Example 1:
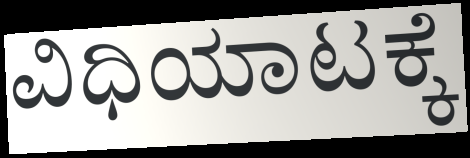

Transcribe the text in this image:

ವಿಧಿಯಾಟಕ್ಕೆ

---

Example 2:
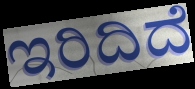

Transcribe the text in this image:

ಇರಿದಿದೆ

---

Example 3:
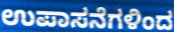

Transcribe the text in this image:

ಉಪಾಸನೆಗಳಿಂದ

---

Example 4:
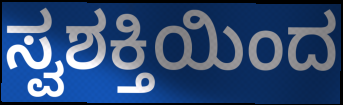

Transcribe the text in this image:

ಸ್ವಶಕ್ತಿಯಿಂದ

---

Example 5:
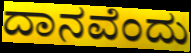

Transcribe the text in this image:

ದಾನವೆಂದು